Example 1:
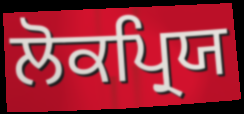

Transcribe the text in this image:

ਲੋਕਪ੍ਰਿਯ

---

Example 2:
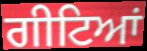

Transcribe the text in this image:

ਗੀਟਿਆਂ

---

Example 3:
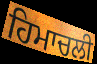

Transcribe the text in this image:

ਹਿਮਾਚਲੀ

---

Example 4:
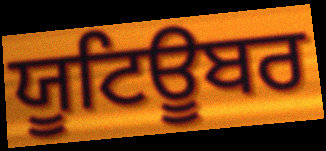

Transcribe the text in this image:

ਯੂਟਿਊਬਰ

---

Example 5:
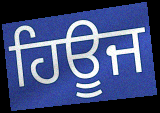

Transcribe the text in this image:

ਹਿਊਜ